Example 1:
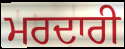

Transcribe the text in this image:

ਮਰਦਾਰੀ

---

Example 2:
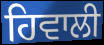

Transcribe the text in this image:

ਹਿਵਾਲੀ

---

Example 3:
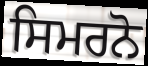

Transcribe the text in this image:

ਸਿਮਰਨੋ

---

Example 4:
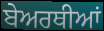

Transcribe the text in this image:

ਬੇਅਰਥੀਆਂ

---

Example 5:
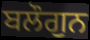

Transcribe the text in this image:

ਬਲੌਗੁਨ